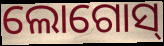
ଲୋଗୋସ୍